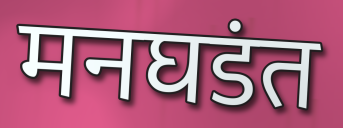
मनघडंत